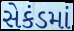
સેકંડમાં